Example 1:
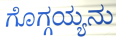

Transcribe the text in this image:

ಗೊಗ್ಗಯ್ಯನು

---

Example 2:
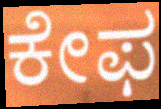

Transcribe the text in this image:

ಕೇಫ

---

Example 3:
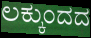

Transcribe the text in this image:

ಲಕ್ಕುಂದದ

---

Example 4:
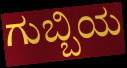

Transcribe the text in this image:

ಗುಬ್ಬಿಯ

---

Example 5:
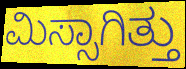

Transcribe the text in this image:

ಮಿಸ್ಸಾಗಿತ್ತು